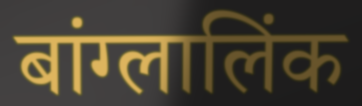
बांग्लालिंक